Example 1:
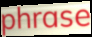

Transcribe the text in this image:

phrase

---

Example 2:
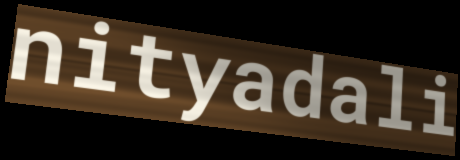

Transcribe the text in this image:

nityadali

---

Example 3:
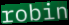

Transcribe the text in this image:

robin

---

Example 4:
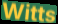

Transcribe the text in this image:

Witts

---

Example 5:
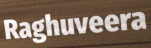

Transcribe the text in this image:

Raghuveera